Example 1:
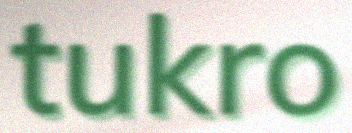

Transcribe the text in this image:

tukro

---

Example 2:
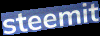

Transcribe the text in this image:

steemit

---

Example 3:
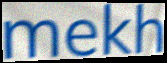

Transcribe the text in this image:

mekh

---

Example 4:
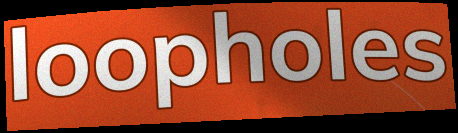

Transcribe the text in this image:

loopholes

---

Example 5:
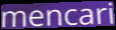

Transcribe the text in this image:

mencari